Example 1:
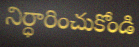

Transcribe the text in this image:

నిర్ధారించుకోండి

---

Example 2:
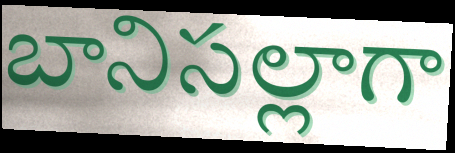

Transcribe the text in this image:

బానిసల్లాగా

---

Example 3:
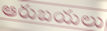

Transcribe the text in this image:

ఆరుబయలు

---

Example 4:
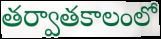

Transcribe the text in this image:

తర్వాతకాలంలో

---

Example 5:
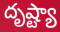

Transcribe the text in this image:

దృష్ట్యా